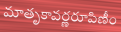
మాతృకావర్ణరూపిణీం